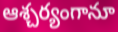
ఆశ్చర్యంగానూ